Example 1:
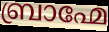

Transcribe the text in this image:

ബ്രാഹ്മേ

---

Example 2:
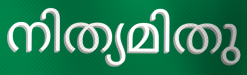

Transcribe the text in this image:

നിത്യമിതു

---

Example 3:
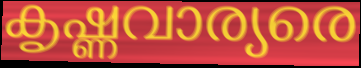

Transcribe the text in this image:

കൃഷ്ണവാര്യരെ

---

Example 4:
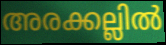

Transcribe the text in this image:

അരക്കല്ലിൽ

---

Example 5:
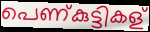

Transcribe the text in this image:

പെണ്കുട്ടികള്